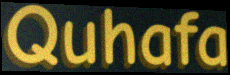
Quhafa